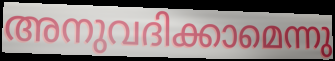
അനുവദിക്കാമെന്നു